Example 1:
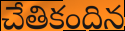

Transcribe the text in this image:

చేతికందిన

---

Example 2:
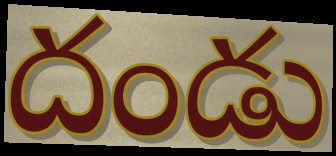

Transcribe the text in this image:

దండు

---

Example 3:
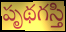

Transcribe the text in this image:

పృథగస్తి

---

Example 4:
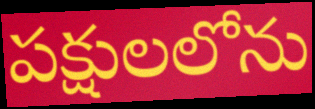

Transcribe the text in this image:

పక్షులలోను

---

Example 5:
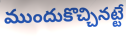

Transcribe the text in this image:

ముందుకొచ్చినట్టే